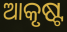
ଆକୃଷ୍ଟ